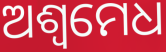
ଅଶ୍ଵମେଧ